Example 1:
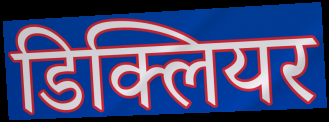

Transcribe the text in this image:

डिक्लियर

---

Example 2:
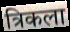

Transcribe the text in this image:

त्रिकला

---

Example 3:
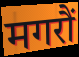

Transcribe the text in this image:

मगरौं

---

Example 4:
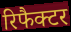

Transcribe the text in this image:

रिफैक्टर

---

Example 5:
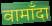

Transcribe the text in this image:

वामाँदा